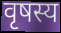
वृषस्य